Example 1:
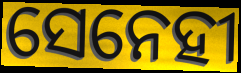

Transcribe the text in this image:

ସେନେହୀ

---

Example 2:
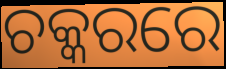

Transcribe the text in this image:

ଚକ୍କରରେ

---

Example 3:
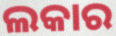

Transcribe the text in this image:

ଲକାର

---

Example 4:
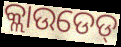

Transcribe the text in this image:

କ୍ଲାଉଡେଡ୍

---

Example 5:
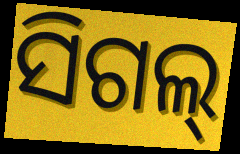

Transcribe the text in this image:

ସିଗଲ୍